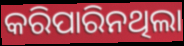
କରିପାରିନଥିଲା